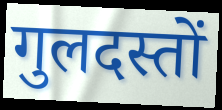
गुलदस्तों